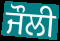
ਜੌਲੀ